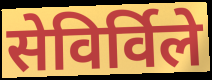
सेविर्विले